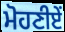
ਮੋਹਣੀਏਂ